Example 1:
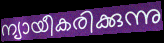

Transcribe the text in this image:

ന്യായീകരിക്കുന്നു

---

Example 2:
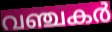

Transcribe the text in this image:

വഞ്ചകർ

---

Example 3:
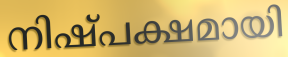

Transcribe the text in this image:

നിഷ്പക്ഷമായി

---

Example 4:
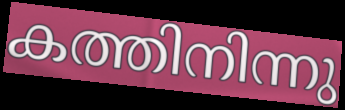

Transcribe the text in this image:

കത്തിനിന്നു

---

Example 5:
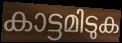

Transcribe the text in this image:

കാട്ടമിടുക